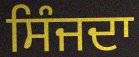
ਸਿੰਜਦਾ